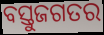
ବସ୍ତୁଜଗତର